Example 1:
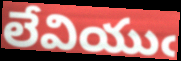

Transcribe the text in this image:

లేవియుఁ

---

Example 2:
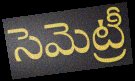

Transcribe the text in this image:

సెమెట్రీ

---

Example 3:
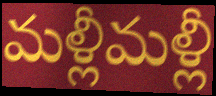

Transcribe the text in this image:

మళ్లీమళ్లీ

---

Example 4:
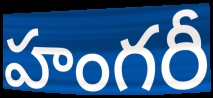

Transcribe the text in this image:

హంగరీ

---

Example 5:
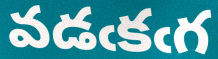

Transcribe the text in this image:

వడఁకఁగ